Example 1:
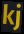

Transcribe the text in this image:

kj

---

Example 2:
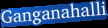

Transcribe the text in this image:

Ganganahalli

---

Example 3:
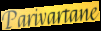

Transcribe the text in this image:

Parivartane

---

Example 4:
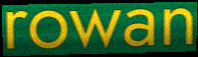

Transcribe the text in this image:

rowan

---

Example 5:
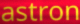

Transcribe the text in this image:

astron